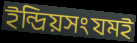
ইন্দ্রিয়সংযমই